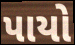
પાયો